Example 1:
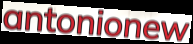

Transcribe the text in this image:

antonionew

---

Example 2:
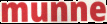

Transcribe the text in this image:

munne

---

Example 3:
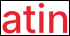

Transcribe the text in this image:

atin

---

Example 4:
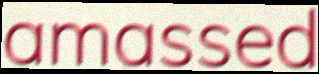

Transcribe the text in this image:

amassed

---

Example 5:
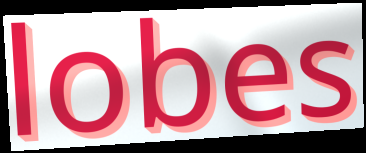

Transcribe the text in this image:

lobes